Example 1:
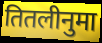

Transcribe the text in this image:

तितलीनुमा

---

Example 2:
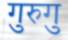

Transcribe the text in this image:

गुरुगु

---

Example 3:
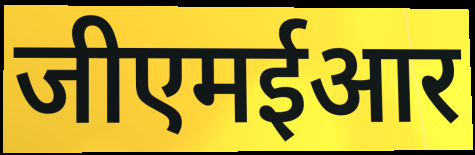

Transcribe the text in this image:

जीएमईआर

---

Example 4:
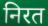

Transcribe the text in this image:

निरत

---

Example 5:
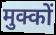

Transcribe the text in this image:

मुक्कों